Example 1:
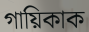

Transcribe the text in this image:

গায়িকাক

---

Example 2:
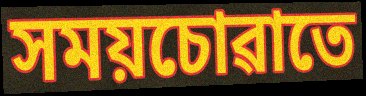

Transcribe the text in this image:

সময়চোৱাতে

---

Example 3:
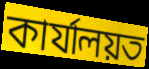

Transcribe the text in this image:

কাৰ্যালয়ত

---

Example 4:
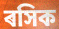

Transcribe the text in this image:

ৰসিক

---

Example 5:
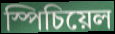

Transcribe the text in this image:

স্পিচিয়েল